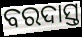
ବରଦାସ୍ତ